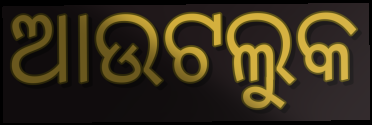
ଆଉଟଲୁକ